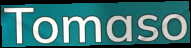
Tomaso